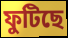
ফুটিছে